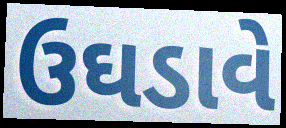
ઉઘડાવે